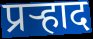
प्रर्‍हाद